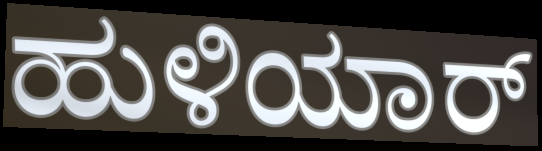
ಹುಳಿಯಾರ್